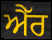
ਐੱਰ